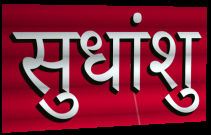
सुधांशु